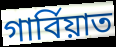
গার্বিয়াত